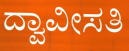
ದ್ವಾವೀಸತಿ